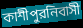
কাশীপুরনিবাসী